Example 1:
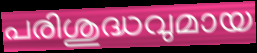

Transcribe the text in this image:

പരിശുദ്ധവുമായ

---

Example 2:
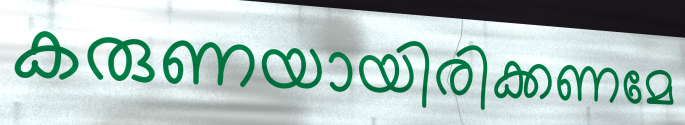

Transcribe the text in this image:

കരുണയായിരിക്കണമേ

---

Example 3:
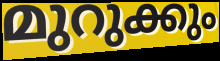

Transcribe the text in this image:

മുറുക്കും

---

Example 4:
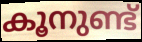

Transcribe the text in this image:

കൂനുണ്ട്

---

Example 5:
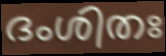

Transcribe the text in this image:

ദംശിതഃ